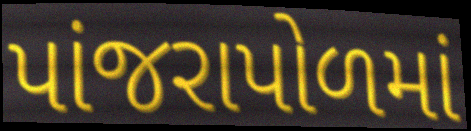
પાંજરાપોળમાં